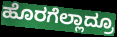
ಹೊರಗೆಲ್ಲಾದ್ರೂ